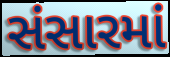
સંસારમાં